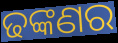
ଢଙ୍କଣର